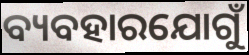
ବ୍ୟବହାରଯୋଗୁଁ